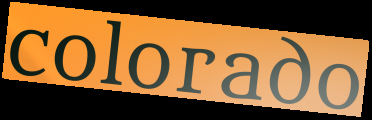
colorado